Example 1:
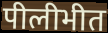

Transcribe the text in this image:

पीलीभीत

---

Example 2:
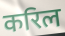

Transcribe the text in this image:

करिल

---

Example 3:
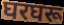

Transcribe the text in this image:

घरघरू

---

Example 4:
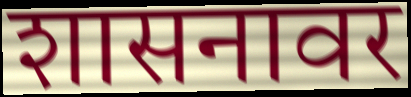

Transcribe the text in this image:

शासनावर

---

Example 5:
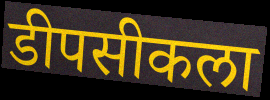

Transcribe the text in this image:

डीपसीकला